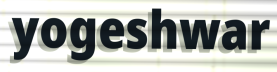
yogeshwar